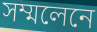
সম্মলেনে